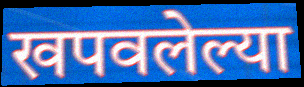
खपवलेल्या